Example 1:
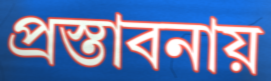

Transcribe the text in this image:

প্রস্তাবনায়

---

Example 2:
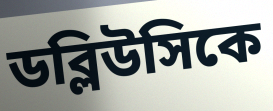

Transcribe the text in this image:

ডব্লিউসিকে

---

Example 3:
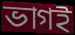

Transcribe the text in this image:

ভাগই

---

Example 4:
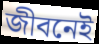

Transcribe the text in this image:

জীবনেই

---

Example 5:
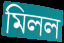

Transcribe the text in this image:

মিলল